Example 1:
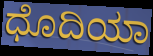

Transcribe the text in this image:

ಧೊದಿಯಾ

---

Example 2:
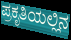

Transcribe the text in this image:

ಪ್ರಕೃತಿಯಲ್ಲಿನ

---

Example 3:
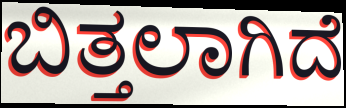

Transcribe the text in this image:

ಬಿತ್ತಲಾಗಿದೆ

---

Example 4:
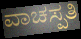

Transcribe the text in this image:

ವಾಚಸ್ಪತಿ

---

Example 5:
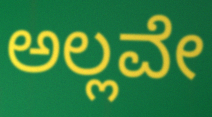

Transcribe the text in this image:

ಅಲ್ಲವೇ